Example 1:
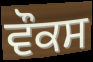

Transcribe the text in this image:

ਵੌਕਸ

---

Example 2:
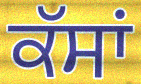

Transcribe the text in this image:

ਕੱਸਾਂ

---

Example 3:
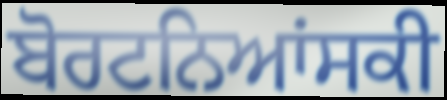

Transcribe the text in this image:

ਬੋਰਟਨਿਆਂਸਕੀ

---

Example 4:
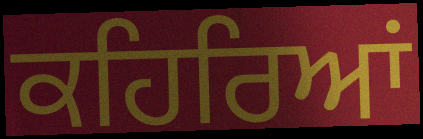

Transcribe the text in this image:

ਕਹਿਰਿਆਂ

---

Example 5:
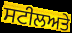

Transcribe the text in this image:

ਸਟੀਲਅਤੇ